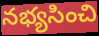
నభ్యసించి